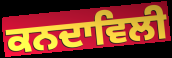
ਕਨਦਾਵਿਲੀ